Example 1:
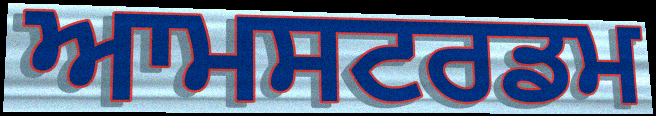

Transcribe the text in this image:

ਆਮਸਟਰਡਮ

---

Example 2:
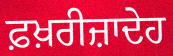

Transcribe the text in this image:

ਫ਼ਖ਼ਰੀਜ਼ਾਦੇਹ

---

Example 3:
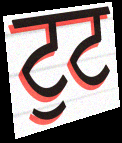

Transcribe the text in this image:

ਟੁਟ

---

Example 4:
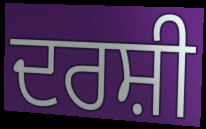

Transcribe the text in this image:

ਦਰਸ਼ੀ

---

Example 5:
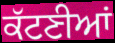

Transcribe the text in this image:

ਕੱਟਣੀਆਂ